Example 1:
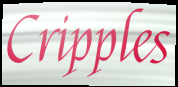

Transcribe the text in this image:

Cripples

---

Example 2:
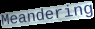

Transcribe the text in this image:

Meandering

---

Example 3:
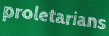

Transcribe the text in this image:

proletarians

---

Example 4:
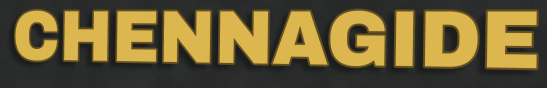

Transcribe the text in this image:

CHENNAGIDE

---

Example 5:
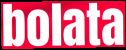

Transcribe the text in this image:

bolata